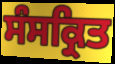
ਸੰਸਕ੍ਰਿਤ